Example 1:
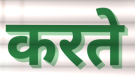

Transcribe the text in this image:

करते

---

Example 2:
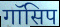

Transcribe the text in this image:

गॉसिप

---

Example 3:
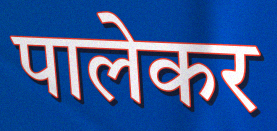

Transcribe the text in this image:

पालेकर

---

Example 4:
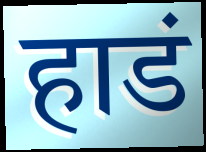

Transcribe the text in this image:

हाडं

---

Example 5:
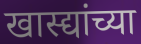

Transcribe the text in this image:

खास्द्यांच्या